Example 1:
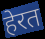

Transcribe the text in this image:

हेरत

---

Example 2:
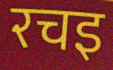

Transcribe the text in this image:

रचइ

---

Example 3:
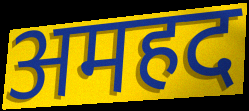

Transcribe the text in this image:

अमहद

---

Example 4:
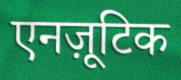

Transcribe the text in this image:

एनज़ूटिक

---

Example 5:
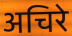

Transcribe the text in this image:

अचिरे